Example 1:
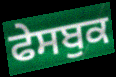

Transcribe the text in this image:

ਫੇਸਬੁਕ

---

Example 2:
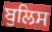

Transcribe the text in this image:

ਬੁਲਿਸ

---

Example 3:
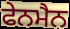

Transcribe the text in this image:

ਫੇਨਮੈਨ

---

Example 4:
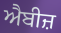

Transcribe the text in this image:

ਐਬੀਜ਼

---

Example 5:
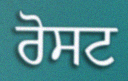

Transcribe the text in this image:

ਰੋਸਟ